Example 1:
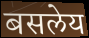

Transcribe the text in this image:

बसलेय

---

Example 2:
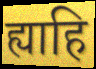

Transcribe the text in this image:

ह्याहि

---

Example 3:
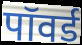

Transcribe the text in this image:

पॉवर्ड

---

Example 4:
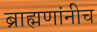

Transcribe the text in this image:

ब्राह्मणांनीच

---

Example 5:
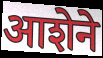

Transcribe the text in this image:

आशेने